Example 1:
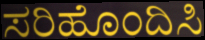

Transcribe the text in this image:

ಸರಿಹೊಂದಿಸಿ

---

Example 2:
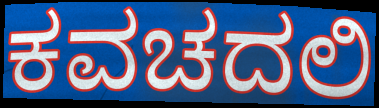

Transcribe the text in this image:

ಕವಚದಲಿ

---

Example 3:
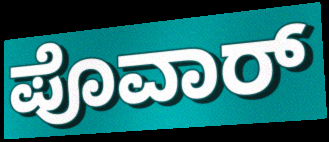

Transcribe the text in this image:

ಪೊವಾರ್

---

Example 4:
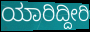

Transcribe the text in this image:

ಯಾರಿದ್ದೀರಿ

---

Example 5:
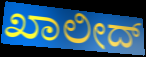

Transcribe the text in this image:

ಖಾಲೀದ್